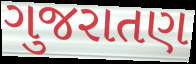
ગુજરાતણ